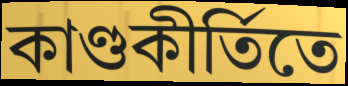
কাণ্ডকীর্তিতে